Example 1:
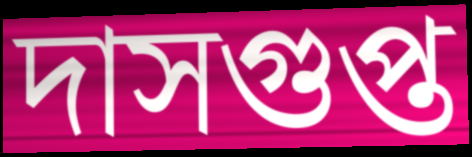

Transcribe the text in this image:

দাসগুপ্ত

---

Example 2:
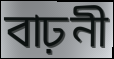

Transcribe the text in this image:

বাঢ়নী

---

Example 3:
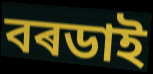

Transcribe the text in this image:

বৰডাই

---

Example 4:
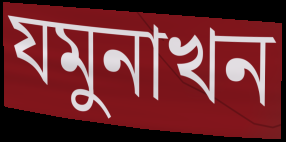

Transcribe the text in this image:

যমুনাখন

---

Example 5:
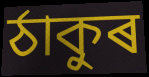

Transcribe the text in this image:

ঠাকুৰ